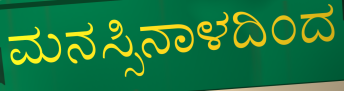
ಮನಸ್ಸಿನಾಳದಿಂದ